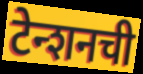
टेन्शनची